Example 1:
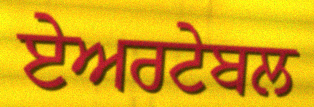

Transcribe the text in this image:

ਏਅਰਟੇਬਲ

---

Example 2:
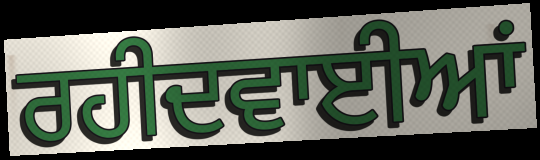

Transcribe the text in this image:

ਰਹੀਦਵਾਈਆਂ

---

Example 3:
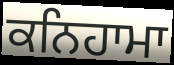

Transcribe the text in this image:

ਕਨਿਹਾਮਾ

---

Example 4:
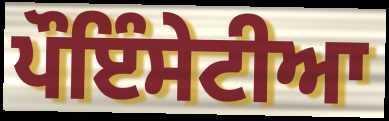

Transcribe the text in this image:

ਪੌਇੰਸੇਟੀਆ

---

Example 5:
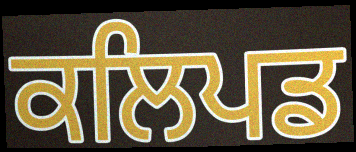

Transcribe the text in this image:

ਕਲਿਪਡ